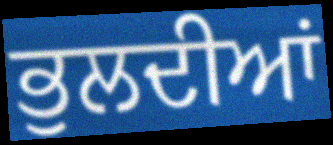
ਭੁਲਦੀਆਂ